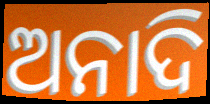
ଅନାଦି